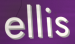
ellis